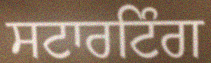
ਸਟਾਰਟਿੰਗ